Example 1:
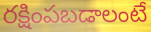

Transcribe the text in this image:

రక్షింపబడాలంటే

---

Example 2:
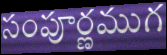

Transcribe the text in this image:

సంపూర్ణముగ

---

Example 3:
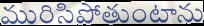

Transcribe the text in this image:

మురిసిపోతుంటాను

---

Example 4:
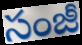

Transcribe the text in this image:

సంజీ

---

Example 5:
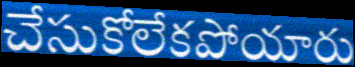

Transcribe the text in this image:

చేసుకోలేకపోయారు